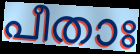
പീതാഃ